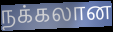
நக்கலான